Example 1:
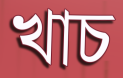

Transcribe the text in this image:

খাচ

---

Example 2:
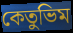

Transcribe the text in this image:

কেতুভিম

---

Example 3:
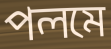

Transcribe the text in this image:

পলমে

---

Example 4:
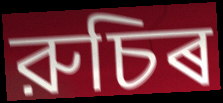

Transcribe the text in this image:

ৰুচিৰ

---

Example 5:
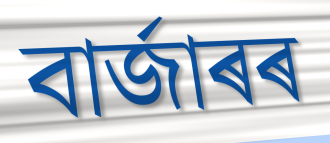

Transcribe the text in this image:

বাৰ্জাৰৰ